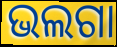
ଭଲଗା